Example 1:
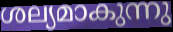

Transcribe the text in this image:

ശല്യമാകുന്നു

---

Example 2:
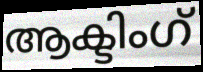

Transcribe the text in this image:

ആക്ടിംഗ്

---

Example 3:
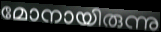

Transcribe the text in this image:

മോനായിരുന്നു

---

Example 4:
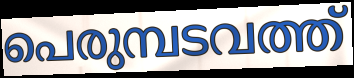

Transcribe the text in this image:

പെരുമ്പടവത്ത്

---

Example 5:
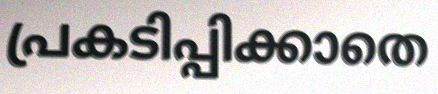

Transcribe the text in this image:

പ്രകടിപ്പിക്കാതെ